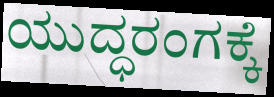
ಯುದ್ಧರಂಗಕ್ಕೆ